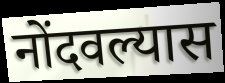
नोंदवल्यास